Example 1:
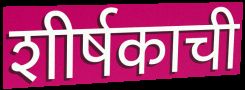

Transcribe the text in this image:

शीर्षकाची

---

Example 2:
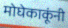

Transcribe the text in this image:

मोघेकाकूंनी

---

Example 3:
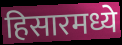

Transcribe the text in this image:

हिसारमध्ये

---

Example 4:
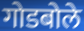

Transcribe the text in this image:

गोडबोले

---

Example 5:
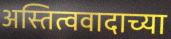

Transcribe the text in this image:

अस्तित्ववादाच्या